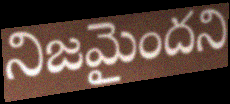
నిజమైందని